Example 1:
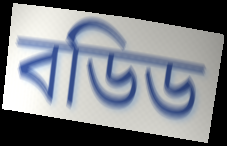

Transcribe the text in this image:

বডিড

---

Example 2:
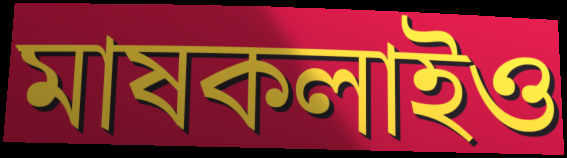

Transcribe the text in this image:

মাষকলাইও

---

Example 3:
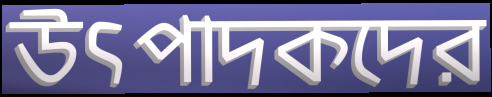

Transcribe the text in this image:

উৎপাদকদের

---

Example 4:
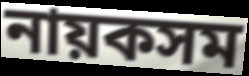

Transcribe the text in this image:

নায়কসম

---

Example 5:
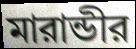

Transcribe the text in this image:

মারান্ডীর